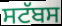
ਸਟੱਬਸ